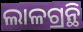
ଲାଳଗ୍ରନ୍ଥି